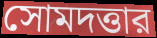
সোমদত্তার